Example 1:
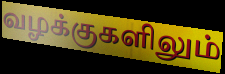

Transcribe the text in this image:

வழக்குகளிலும்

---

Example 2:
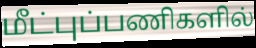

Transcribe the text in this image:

மீட்புப்பணிகளில்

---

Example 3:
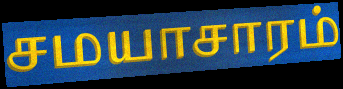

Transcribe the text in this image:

சமயாசாரம்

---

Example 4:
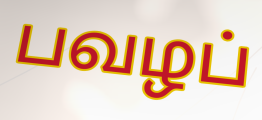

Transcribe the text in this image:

பவழப்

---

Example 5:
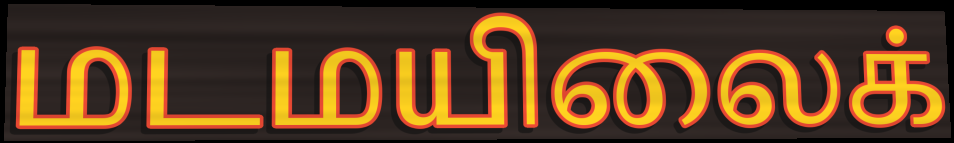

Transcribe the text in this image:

மடமயிலைக்